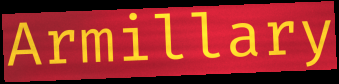
Armillary